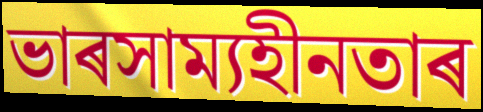
ভাৰসাম্যহীনতাৰ